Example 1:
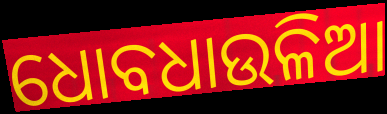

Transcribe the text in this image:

ଧୋବଧାଉଳିଆ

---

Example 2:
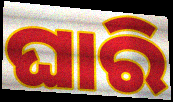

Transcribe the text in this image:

ଘାରି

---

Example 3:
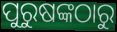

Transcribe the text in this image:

ପୁରୁଷଙ୍କଠାରୁ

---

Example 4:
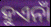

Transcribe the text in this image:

ହୁଏନାଁ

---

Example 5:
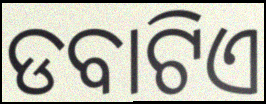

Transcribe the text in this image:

ଡବାଟିଏ